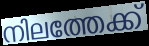
നിലത്തേക്ക്